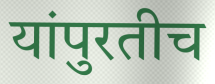
यांपुरतीच